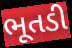
ભૂતડી